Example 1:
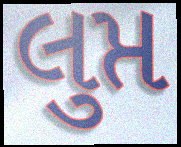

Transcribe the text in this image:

લુપ્ત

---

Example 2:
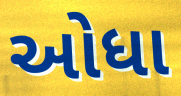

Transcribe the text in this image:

ઓધા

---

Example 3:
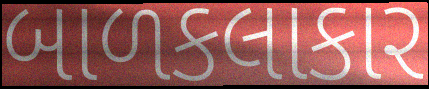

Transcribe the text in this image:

બાળકલાકાર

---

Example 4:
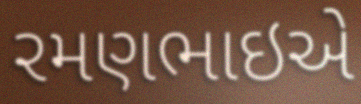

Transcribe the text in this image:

રમણભાઇએ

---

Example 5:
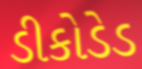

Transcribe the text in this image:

ડીકોડેડ